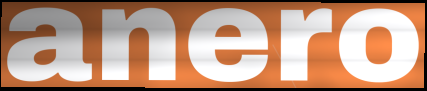
anero